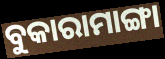
ବୁକାରାମାଙ୍ଗା